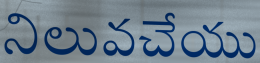
నిలువచేయు